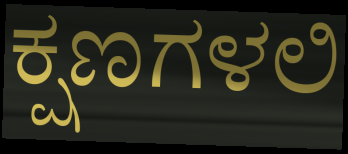
ಕ್ಷಣಗಳಲಿ